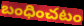
బంధించటం